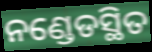
ନଣ୍ଡେଡସ୍ଥିତ